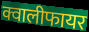
क्वालीफायर